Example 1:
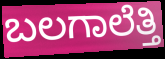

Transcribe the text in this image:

ಬಲಗಾಲೆತ್ತಿ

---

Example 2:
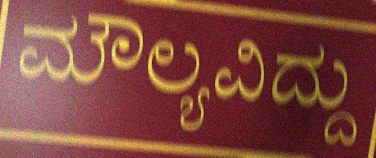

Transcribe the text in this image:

ಮೌಲ್ಯವಿದ್ದು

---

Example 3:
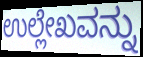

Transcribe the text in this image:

ಉಲ್ಲೇಖವನ್ನು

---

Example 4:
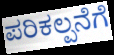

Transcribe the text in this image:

ಪರಿಕಲ್ಪನೆಗೆ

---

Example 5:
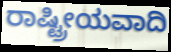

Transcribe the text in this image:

ರಾಷ್ಟ್ರೀಯವಾದಿ